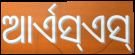
ଆର୍ଏସ୍ଏସ୍